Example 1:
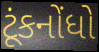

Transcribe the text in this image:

ટૂંકનોંધો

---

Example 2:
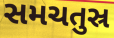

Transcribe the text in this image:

સમચતુસ્ર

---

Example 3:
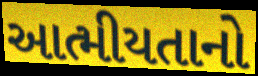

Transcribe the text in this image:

આત્મીયતાનો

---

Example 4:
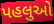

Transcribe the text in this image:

પહલુઓ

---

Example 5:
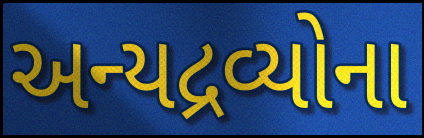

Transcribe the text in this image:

અન્યદ્રવ્યોના